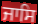
ਜਾਸਿ